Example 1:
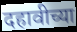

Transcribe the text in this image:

दहावीच्या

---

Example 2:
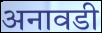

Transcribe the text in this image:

अनावडी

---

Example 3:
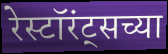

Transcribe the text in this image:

रेस्टॉरंट्सच्या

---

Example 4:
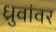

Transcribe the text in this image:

ध्रुवांवर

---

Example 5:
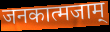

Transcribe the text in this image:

जनकात्मजाम्